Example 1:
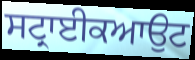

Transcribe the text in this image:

ਸਟ੍ਰਾਈਕਆਉਟ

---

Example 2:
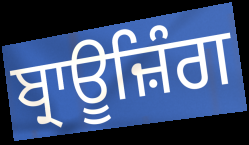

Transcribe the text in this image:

ਬ੍ਰਾਊਜ਼ਿੰਗ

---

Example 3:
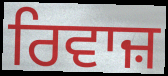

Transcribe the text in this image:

ਰਿਵਾਜ਼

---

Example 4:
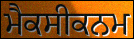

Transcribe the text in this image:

ਮੈਕਸੀਕਨਮ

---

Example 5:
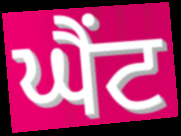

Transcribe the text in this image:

ਘੈਂਟ